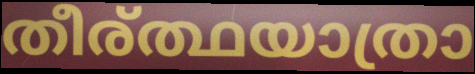
തീര്ത്ഥയാത്രാ